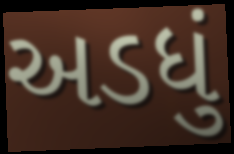
અડધું